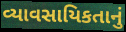
વ્યાવસાયિકતાનું